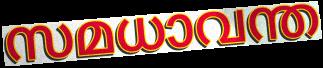
സമധാവന്ത